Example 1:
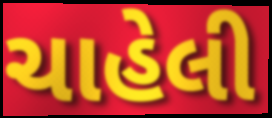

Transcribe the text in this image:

ચાહેલી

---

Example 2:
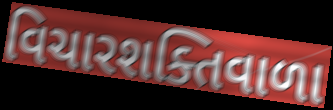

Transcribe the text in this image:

વિચારશક્તિવાળા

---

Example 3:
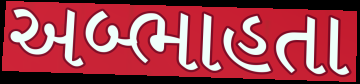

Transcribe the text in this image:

અબ્ભાહતા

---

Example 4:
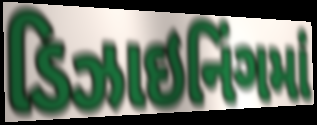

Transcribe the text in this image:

ડિઝાઇનિંગમાં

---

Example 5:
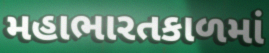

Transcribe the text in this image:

મહાભારતકાળમાં